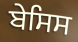
ਬੇਸਿਸ